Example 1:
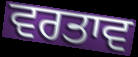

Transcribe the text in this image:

ਵਰਤਾਵ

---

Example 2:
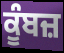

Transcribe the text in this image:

ਕੂੰਬਜ਼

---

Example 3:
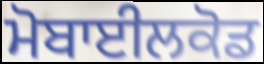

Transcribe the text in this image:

ਮੋਬਾਈਲਕੋਡ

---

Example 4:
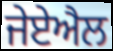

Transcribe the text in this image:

ਜੇਏਐਲ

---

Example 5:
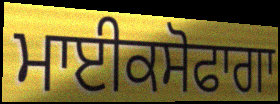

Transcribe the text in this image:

ਮਾਈਕਸੋਫਾਗਾ